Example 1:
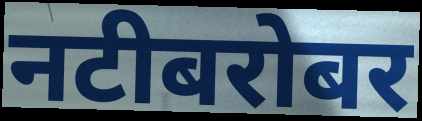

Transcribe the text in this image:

नटीबरोबर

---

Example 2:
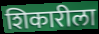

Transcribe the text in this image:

शिकारीला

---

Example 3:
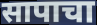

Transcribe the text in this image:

सापाचा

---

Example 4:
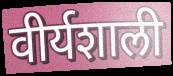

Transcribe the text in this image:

वीर्यशाली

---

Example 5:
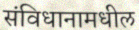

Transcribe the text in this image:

संविधानामधील